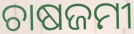
ଚାଷଜମୀ